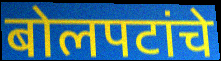
बोलपटांचे